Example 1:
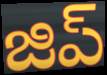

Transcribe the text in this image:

జిప్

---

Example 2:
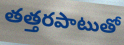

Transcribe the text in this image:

తత్తరపాటుతో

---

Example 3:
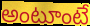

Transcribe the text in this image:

అంటూంటే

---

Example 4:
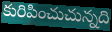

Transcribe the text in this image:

కురిపించుచున్నది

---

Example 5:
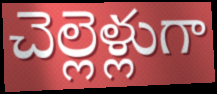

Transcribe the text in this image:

చెల్లెళ్లుగా